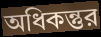
অধিকন্তুর